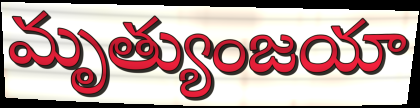
మృత్యుంజయా